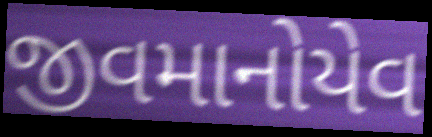
જીવમાનોયેવ